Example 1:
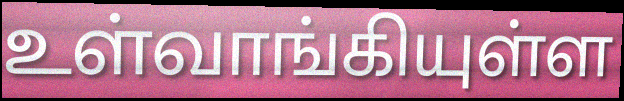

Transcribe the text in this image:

உள்வாங்கியுள்ள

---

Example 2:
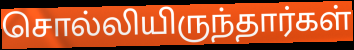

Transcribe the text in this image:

சொல்லியிருந்தார்கள்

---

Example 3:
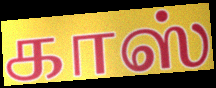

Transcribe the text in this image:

காஸ்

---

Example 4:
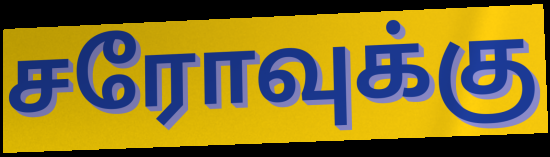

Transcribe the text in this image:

சரோவுக்கு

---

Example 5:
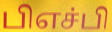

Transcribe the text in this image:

பிஎச்பி